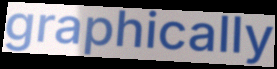
graphically